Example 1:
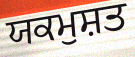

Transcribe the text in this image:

ਯਕਮੁਸ਼ਤ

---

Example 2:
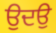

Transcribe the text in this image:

ਉਦਉ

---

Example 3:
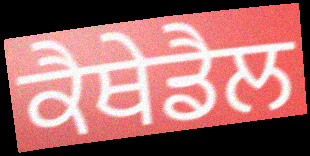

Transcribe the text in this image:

ਕੈਥੇਡੈਲ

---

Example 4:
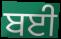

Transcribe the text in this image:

ਬਈ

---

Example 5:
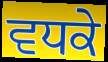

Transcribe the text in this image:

ਵਧਕੇ